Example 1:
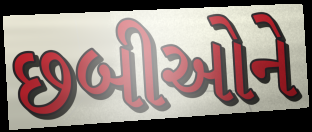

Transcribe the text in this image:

છબીઓને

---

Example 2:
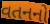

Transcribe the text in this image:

વતનનો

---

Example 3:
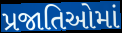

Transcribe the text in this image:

પ્રજાતિઓમાં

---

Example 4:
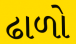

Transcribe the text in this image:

ઢાળો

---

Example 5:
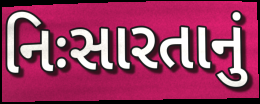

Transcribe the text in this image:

નિઃસારતાનું